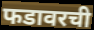
फडावरची